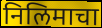
निलिमाचा